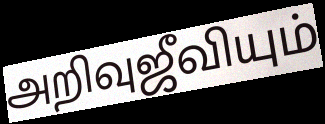
அறிவுஜீவியும்